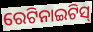
ରେଟିନାଇଟିସ୍